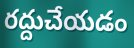
రద్దుచేయడం